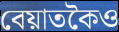
বেয়াতকৈও